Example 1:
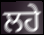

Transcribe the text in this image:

ਲਹੇ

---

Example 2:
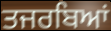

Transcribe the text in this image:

ਤਜਰਬਿਆਂ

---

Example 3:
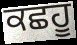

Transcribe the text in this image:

ਕਛਹੂ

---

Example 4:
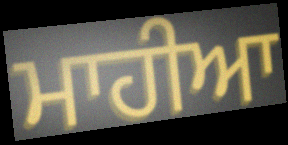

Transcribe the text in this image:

ਮਾਹੀਆ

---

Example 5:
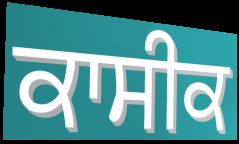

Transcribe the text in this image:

ਕਾਸੀਕ